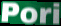
Pori